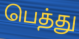
பெத்து